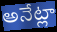
అనేట్లా